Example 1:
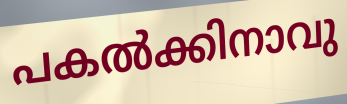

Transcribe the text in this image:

പകൽക്കിനാവു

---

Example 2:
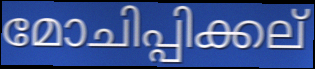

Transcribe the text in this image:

മോചിപ്പിക്കല്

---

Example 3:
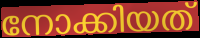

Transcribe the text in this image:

നോക്കിയത്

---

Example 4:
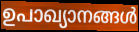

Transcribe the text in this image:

ഉപാഖ്യാനങ്ങൾ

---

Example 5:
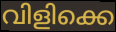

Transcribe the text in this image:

വിളിക്കെ